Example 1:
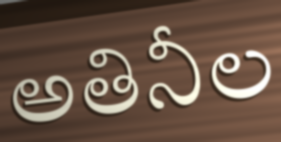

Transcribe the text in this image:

అతినీల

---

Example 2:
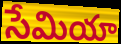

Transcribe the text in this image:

సేమియా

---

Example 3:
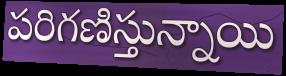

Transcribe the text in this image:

పరిగణిస్తున్నాయి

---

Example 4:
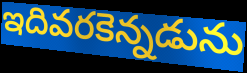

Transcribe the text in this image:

ఇదివరకెన్నడును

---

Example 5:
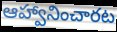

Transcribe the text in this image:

ఆహ్వానించారట